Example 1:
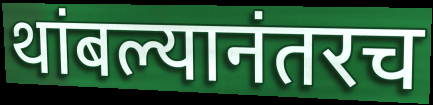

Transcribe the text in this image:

थांबल्यानंतरच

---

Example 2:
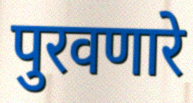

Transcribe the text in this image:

पुरवणारे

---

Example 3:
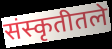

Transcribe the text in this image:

संस्कृतीतले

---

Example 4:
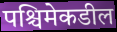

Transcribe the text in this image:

पश्चिमेकडील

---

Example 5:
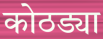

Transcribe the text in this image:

कोठड्या